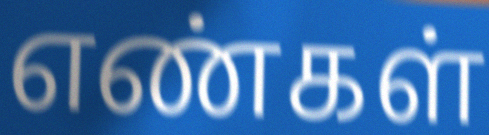
எண்கள்